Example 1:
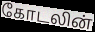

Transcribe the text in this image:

கோடலின்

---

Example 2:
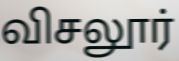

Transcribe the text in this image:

விசலூர்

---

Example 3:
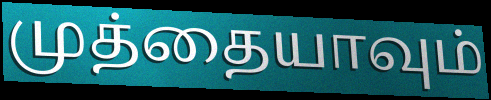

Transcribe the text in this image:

முத்தையாவும்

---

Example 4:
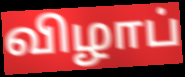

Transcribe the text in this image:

விழாப்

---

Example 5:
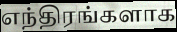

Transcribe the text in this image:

எந்திரங்களாக